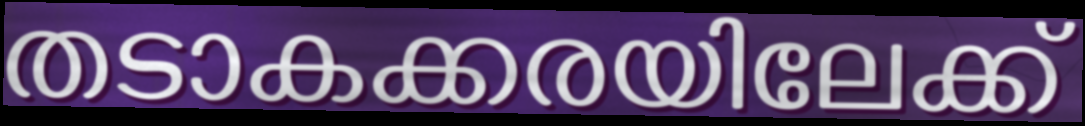
തടാകക്കരയിലേക്ക്